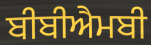
ਬੀਬੀਐਮਬੀ